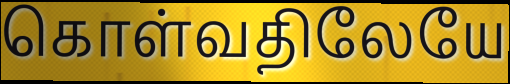
கொள்வதிலேயே